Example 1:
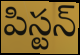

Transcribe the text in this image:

పిస్టన్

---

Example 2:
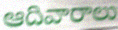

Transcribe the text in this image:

ఆదివారాలు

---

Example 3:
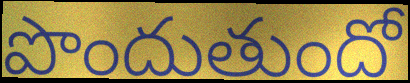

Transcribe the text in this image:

పొందుతుందో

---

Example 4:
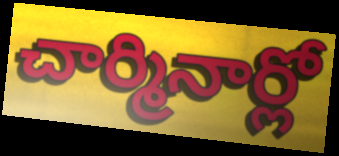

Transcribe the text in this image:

చార్మినార్లో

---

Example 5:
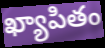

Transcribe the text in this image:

ఖ్యాపితం